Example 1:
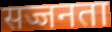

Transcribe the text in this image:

सज्जनता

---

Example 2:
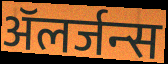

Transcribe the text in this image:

ॲलर्जन्स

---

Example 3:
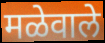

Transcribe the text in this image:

मळेवाले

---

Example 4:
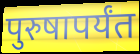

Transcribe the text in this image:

पुरुषापर्यंत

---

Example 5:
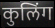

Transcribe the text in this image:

कुलिंग